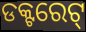
ଡକ୍ଟରେଟ୍